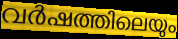
വർഷത്തിലെയും